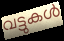
വട്ടുകൾ